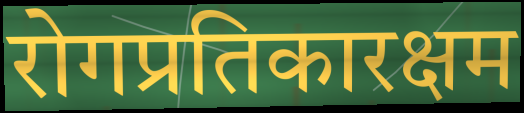
रोगप्रतिकारक्षम